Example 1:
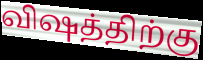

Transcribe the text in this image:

விஷத்திற்கு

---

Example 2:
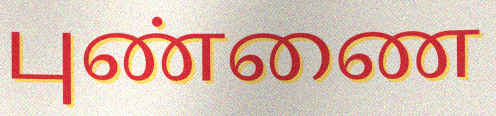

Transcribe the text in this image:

புண்ணை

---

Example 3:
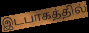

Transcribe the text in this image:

இடபாகத்தில்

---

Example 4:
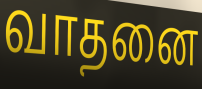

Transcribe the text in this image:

வாதனை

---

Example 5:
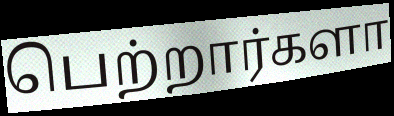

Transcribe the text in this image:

பெற்றார்களா